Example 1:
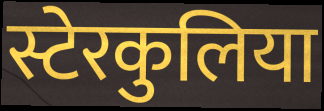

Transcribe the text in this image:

स्टेरकुलिया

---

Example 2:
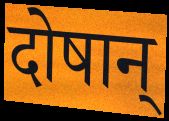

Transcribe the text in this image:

दोषान्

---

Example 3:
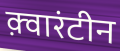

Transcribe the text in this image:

क़्वारंटीन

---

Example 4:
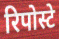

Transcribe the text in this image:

रिपोस्टे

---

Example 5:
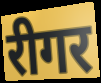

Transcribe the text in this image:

रीगर